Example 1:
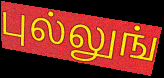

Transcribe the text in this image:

புல்லுங்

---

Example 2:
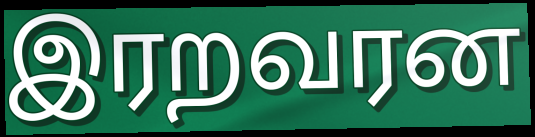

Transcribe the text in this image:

இரறவரன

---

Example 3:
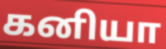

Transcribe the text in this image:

கனியா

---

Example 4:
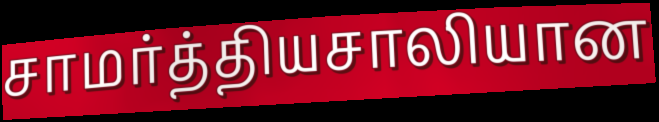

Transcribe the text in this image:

சாமர்த்தியசாலியான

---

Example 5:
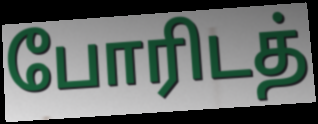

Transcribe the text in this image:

போரிடத்